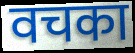
वचका